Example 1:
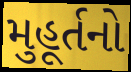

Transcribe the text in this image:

મુહૂર્તનો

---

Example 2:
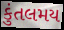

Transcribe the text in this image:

કુંતલમય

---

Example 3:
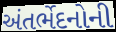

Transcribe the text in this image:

અંતર્ભેદનોની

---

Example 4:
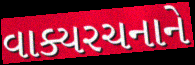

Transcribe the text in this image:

વાક્યરચનાને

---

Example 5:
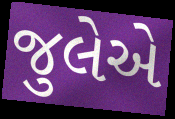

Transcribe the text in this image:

જુલેએ